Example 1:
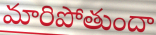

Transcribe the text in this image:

మారిపోతుందా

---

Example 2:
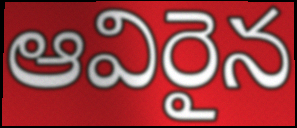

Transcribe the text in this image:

ఆవిరైన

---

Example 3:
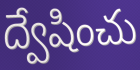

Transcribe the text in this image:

ద్వేషించు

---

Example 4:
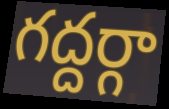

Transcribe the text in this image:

గద్దర్గా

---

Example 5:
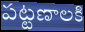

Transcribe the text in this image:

పట్టణాలకి